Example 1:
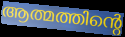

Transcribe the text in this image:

ആത്മത്തിന്റെ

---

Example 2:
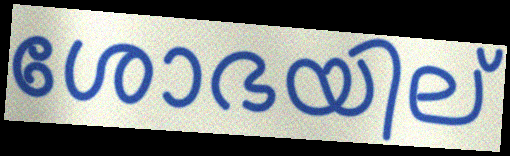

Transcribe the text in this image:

ശോഭയില്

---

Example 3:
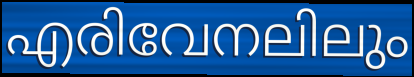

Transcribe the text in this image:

എരിവേനലിലും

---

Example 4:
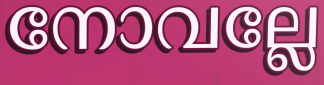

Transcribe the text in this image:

നോവല്ലേ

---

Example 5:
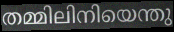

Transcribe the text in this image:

തമ്മിലിനിയെന്തു